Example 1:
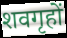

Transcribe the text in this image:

शवगृहों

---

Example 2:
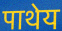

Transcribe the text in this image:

पाथेय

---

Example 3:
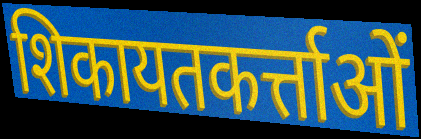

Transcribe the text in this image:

शिकायतकर्त्ताओं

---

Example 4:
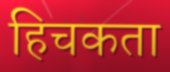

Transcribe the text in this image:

हिचकता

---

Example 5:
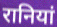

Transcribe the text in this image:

रानियां